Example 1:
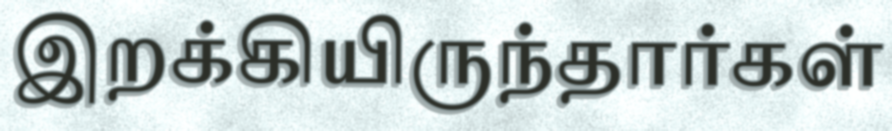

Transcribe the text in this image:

இறக்கியிருந்தார்கள்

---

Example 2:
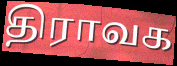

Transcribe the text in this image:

திராவக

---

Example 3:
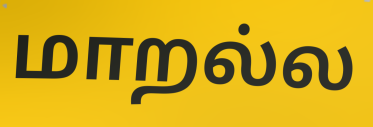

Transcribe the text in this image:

மாறல்ல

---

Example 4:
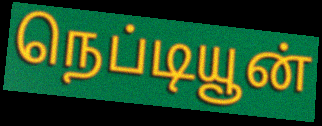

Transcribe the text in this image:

நெப்டியூன்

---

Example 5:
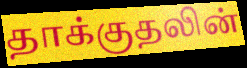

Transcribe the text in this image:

தாக்குதலின்